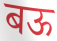
बऊ